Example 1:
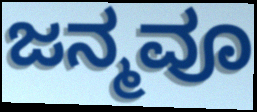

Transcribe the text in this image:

ಜನ್ಮವೂ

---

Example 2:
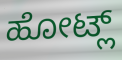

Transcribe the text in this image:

ಹೋಟ್ಲ್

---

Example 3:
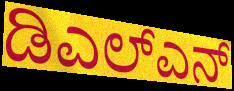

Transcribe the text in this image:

ಡಿಎಲ್ಎನ್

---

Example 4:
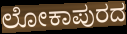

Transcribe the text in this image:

ಲೋಕಾಪುರದ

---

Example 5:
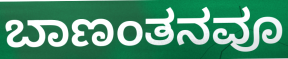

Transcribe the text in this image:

ಬಾಣಂತನವೂ